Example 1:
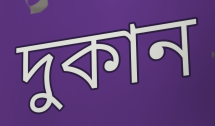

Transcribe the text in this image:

দুকান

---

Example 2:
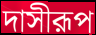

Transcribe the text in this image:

দাসীরূপ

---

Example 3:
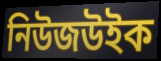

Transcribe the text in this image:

নিউজউইক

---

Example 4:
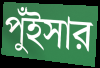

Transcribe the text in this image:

পুঁইসার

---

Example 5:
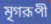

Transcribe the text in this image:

মৃগরূপী